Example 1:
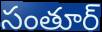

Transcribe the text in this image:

సంతూర్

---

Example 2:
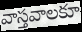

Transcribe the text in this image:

వాస్తవాలకూ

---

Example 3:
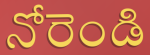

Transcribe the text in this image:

నోరెండి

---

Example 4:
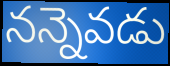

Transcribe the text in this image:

నన్నెవడు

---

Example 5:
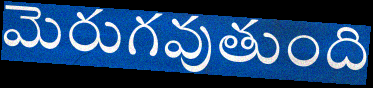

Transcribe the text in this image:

మెరుగవుతుంది